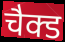
चैक्ड